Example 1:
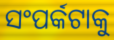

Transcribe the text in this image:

ସଂପର୍କଟାକୁ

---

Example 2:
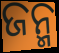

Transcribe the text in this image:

ଜନ୍ମ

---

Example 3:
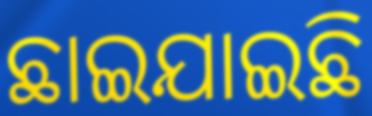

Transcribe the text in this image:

ଛାଇଯାଇଛି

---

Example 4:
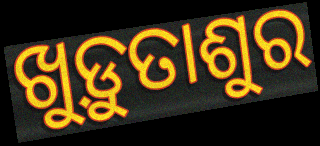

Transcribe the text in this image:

ଖୁଡ଼ୁତାଶୁର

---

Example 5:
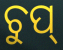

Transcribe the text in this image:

ଚୁପ୍